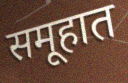
समूहात